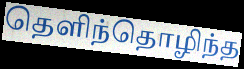
தெளிந்தொழிந்த